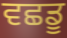
ਵਛਡੂ